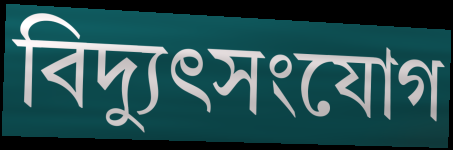
বিদ্যুৎসংযোগ